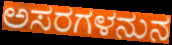
ಅಸರಗಳನುನ